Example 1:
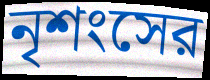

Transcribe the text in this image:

নৃশংসের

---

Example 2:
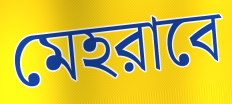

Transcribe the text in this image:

মেহরাবে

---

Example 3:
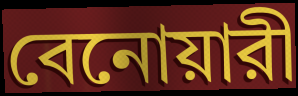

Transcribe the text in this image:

বেনোয়ারী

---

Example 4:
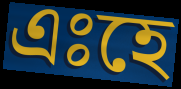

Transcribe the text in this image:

এঃহে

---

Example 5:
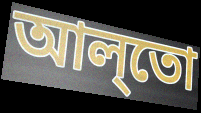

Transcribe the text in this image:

আল্‌তো